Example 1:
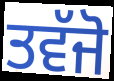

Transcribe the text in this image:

ਤਵੱਜੋ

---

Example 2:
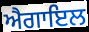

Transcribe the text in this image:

ਐਗਾਇਲ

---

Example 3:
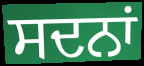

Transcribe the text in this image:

ਸਦਨਾਂ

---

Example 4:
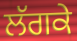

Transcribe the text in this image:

ਲੱਗਕੇ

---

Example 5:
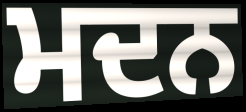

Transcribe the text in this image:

ਮਦਨ